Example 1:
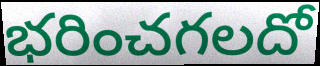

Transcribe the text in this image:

భరించగలదో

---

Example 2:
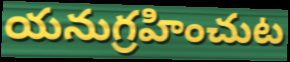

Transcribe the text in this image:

యనుగ్రహించుట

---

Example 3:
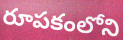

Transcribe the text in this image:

రూపకంలోని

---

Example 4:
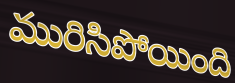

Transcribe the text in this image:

మురిసిపోయింది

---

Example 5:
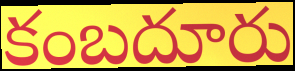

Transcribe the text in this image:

కంబదూరు